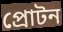
প্রোটন